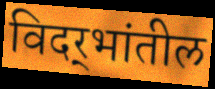
विदर्भांतील